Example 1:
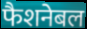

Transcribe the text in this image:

फैशनेबल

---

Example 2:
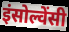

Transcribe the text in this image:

इंसोल्वेंसी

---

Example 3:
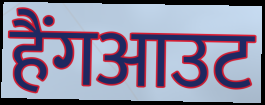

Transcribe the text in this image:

हैंगआउट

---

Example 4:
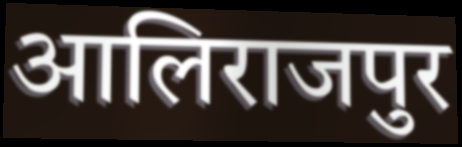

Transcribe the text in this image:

आलिराजपुर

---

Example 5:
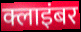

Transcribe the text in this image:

क्लाइंबर